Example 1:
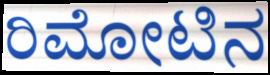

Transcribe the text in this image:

ರಿಮೋಟಿನ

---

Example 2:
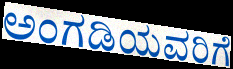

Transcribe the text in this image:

ಅಂಗಡಿಯವರಿಗೆ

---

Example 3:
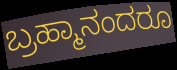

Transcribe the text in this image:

ಬ್ರಹ್ಮಾನಂದರೂ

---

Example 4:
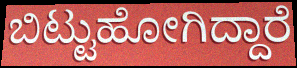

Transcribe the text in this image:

ಬಿಟ್ಟುಹೋಗಿದ್ದಾರೆ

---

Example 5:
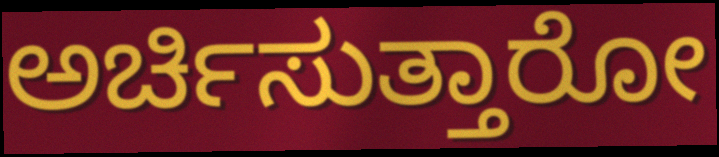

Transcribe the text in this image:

ಅರ್ಚಿಸುತ್ತಾರೋ